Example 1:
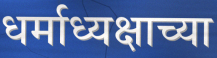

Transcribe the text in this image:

धर्माध्यक्षाच्या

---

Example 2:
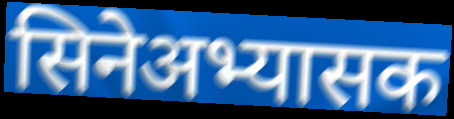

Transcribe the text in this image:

सिनेअभ्यासक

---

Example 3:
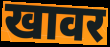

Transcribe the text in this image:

खावर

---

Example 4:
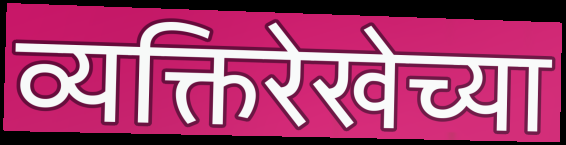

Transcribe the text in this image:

व्यक्तिरेखेच्या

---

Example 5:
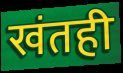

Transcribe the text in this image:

खंतही